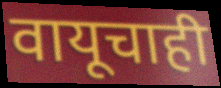
वायूचाही